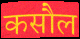
कसौल